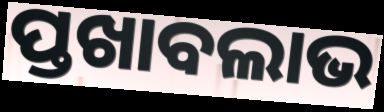
ପ୍ତଖାବଲାଭ